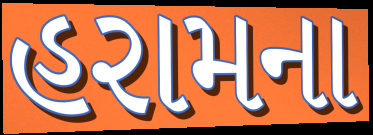
હરામના